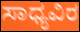
ಸಾಧ್ಯವಿರ